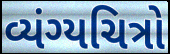
વ્યંગ્યચિત્રો